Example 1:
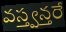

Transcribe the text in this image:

వస్త్వన్తరే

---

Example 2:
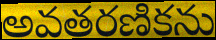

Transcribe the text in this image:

అవతరణికను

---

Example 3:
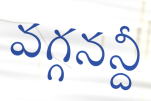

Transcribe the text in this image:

వగ్గనన్దీ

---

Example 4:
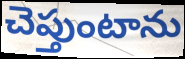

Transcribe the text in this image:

చెప్తుంటాను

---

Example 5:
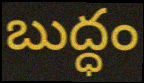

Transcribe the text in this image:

బుద్ధం